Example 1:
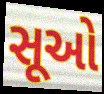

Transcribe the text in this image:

સૂઓ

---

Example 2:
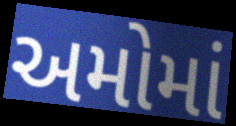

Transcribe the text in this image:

અમોમાં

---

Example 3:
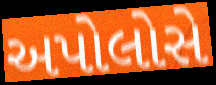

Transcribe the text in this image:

અપોલોસે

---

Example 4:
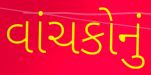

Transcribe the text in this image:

વાંચકોનું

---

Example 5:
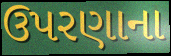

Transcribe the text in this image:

ઉપરણાના